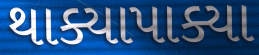
થાક્યાપાક્યા